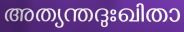
അത്യന്തദുഃഖിതാ